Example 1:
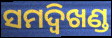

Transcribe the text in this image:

ସମଦ୍ବିଖଣ୍ଡ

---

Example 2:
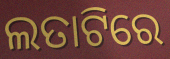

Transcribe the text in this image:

ଲତାଟିରେ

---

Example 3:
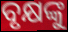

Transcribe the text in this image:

ବୃକ୍ଷଙ୍କୁ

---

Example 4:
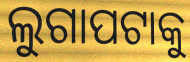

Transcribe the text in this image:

ଲୁଗାପଟାକୁ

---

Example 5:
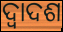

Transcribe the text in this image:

ଦ୍ଵାଦଶ